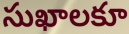
సుఖాలకూ